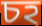
চহ